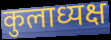
कुलाध्यक्ष